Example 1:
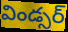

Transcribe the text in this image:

విండ్సర్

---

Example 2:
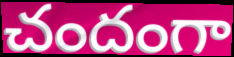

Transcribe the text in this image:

చందంగా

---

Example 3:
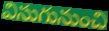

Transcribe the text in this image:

విసుగునుంచి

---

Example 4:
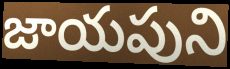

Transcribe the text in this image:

జాయపుని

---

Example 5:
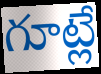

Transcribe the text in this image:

గూట్లే